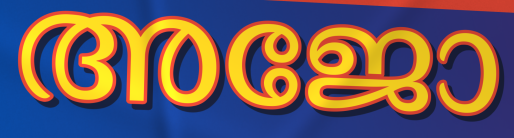
അജോ